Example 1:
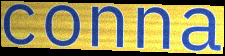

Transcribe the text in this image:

conna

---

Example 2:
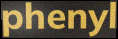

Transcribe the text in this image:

phenyl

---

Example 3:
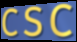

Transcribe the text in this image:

csc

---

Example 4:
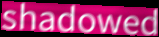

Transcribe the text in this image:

shadowed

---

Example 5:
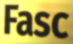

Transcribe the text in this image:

Fasc